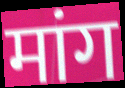
मांग